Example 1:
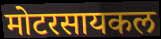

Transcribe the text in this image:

मोटरसायकल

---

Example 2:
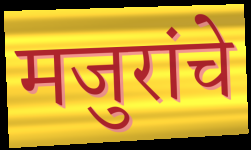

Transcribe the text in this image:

मजुरांचे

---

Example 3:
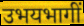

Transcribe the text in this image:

उभयभागीं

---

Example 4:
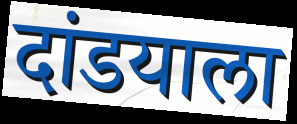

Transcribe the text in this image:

दांडयाला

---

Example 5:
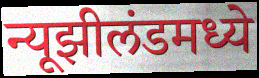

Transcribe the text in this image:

न्यूझीलंडमध्ये